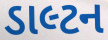
ડાલ્ટન